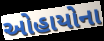
ઓહાયોના